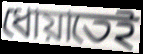
ধোয়াতেই